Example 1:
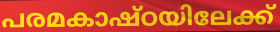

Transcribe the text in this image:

പരമകാഷ്ഠയിലേക്ക്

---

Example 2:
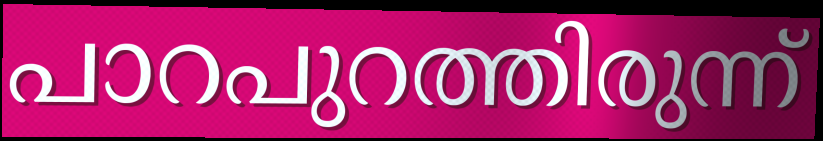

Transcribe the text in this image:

പാറപുറത്തിരുന്ന്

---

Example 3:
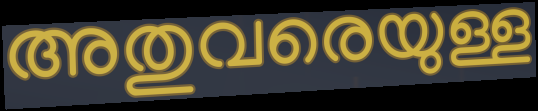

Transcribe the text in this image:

അതുവരെയുള്ള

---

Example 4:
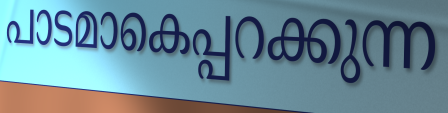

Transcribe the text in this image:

പാടമാകെപ്പറക്കുന്ന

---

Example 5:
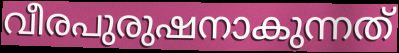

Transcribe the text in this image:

വീരപുരുഷനാകുന്നത്